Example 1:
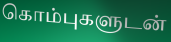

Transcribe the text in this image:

கொம்புகளுடன்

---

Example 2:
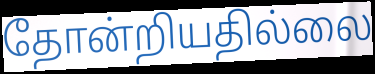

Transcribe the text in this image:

தோன்றியதில்லை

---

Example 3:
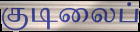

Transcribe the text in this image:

குடிலைப்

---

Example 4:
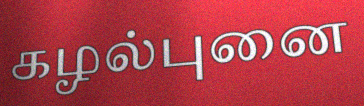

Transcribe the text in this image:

கழல்புனை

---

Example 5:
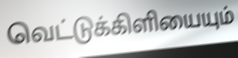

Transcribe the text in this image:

வெட்டுக்கிளியையும்